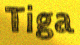
Tiga